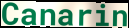
Canarin